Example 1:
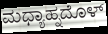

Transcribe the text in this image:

ಮಧ್ಯಾಹ್ನದೊಳ್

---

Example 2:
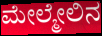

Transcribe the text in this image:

ಮೇಲ್ಮೇಲಿನ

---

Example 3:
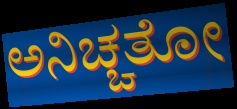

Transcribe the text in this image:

ಅನಿಚ್ಚತೋ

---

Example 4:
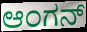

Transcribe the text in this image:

ಆಂಗನ್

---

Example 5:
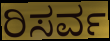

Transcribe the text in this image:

ರಿಸರ್ವ